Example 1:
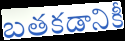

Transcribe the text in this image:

బతకడానికీ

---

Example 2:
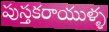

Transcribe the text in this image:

పుస్తకరాయుళ్ళ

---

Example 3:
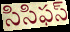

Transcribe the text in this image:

సిసిఫస్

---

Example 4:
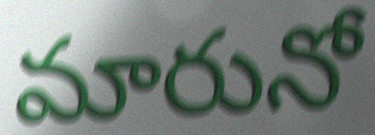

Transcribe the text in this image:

మారునో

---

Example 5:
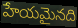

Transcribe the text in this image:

హేయమైనది